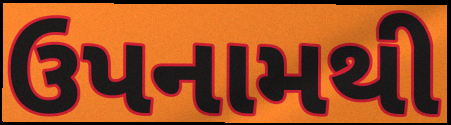
ઉપનામથી